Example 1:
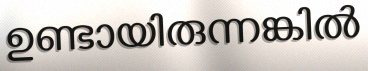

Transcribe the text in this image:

ഉണ്ടായിരുന്നങ്കിൽ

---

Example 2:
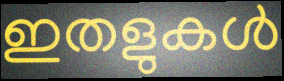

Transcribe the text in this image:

ഇതളുകൾ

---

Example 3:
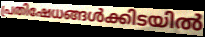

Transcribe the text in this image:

പ്രതിഷേധങ്ങൾക്കിടയിൽ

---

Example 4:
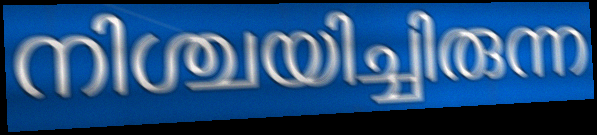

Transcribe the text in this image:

നിശ്ചയിച്ചിരുന്ന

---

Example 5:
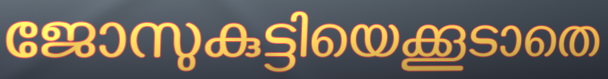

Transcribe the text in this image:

ജോസുകുട്ടിയെക്കൂടാതെ